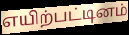
எயிற்பட்டினம்